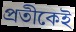
প্রতীকেই